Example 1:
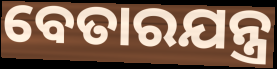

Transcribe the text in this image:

ବେତାରଯନ୍ତ୍ର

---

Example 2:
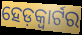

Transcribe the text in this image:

ହେଡ଼କ୍ୱାର୍ଟର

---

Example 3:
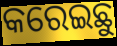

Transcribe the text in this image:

କରେଇଛୁ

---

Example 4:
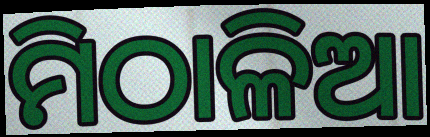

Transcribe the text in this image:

ମିଠାଳିଆ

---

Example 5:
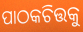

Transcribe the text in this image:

ପାଠକଚିତ୍ତକୁ